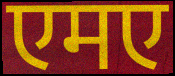
एमए